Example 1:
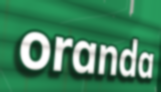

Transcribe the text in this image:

oranda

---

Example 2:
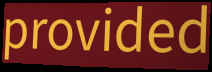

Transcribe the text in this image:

provided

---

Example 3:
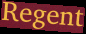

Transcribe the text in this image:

Regent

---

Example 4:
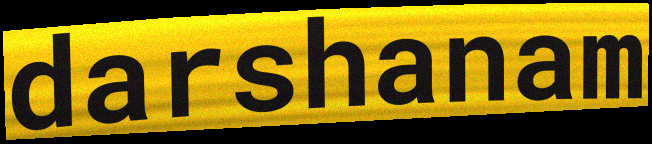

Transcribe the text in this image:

darshanam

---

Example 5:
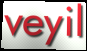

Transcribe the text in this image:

veyil